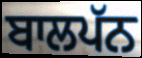
ਬਾਲਪੱਨ